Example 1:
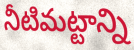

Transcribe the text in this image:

నీటిమట్టాన్ని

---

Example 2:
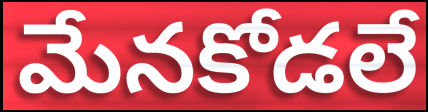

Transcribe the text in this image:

మేనకోడలే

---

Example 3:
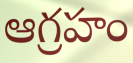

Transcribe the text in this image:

ఆగ్రహం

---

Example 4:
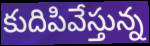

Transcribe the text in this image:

కుదిపివేస్తున్న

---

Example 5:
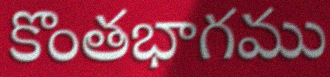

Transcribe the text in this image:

కొంతభాగము